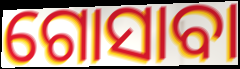
ଗୋସାବା